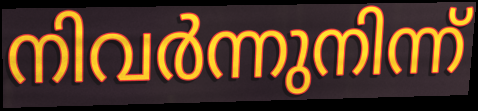
നിവർന്നുനിന്ന്